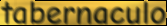
tabernaculo